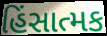
હિંસાત્મક